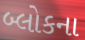
બ્લોકના